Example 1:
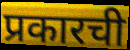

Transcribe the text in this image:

प्रकारची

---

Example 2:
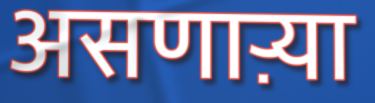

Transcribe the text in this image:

असणाऱ्‍या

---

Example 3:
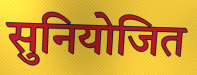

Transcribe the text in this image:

सुनियोजित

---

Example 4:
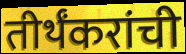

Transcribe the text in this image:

तीर्थंकरांची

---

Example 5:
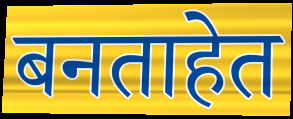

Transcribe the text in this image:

बनताहेत